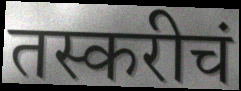
तस्करीचं